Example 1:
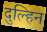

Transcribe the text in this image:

दुल्हिन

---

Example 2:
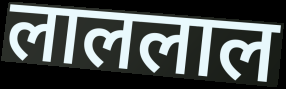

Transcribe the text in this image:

लाललाल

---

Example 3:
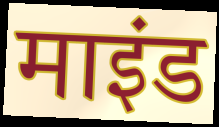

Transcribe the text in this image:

माइंड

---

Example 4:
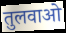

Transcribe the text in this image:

तुलवाओ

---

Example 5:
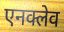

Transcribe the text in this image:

एनक्लेव